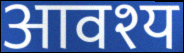
आवश्य